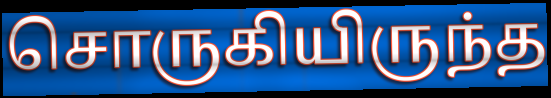
சொருகியிருந்த